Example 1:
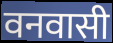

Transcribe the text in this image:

वनवासी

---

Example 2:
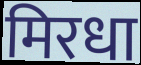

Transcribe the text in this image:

मिरधा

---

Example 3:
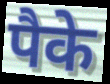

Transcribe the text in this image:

पैके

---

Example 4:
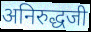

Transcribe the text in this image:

अनिरुद्धजी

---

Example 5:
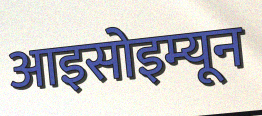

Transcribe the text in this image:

आइसोइम्यून